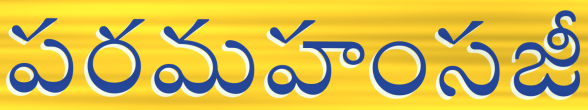
పరమహంసజీ